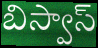
బిస్వాస్